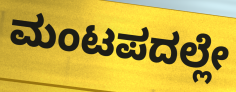
ಮಂಟಪದಲ್ಲೇ